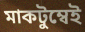
মাকটুম্বেই